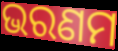
ଭରଣମ